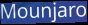
Mounjaro